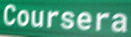
Coursera